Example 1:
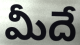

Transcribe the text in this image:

మీదే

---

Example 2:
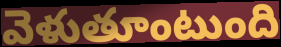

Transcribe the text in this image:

వెళుతూంటుంది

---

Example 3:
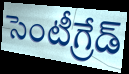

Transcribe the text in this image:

సెంటీగ్రేడ్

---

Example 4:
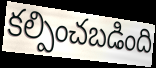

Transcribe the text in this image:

కల్పించబడింది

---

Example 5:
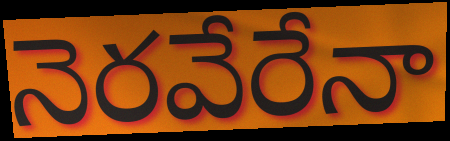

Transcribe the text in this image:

నెరవేరేనా